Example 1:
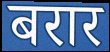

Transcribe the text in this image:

बरार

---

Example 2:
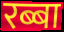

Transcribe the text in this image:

रब्बा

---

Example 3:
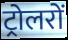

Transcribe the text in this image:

ट्रोलरों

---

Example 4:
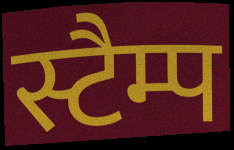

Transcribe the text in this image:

स्टैम्प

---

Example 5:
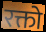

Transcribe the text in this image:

रक्तो